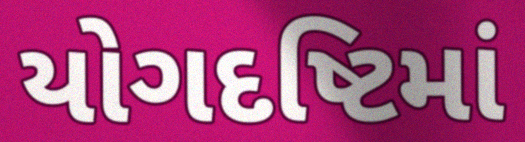
યોગદષ્ટિમાં